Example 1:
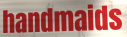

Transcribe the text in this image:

handmaids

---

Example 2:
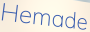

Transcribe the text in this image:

Hemade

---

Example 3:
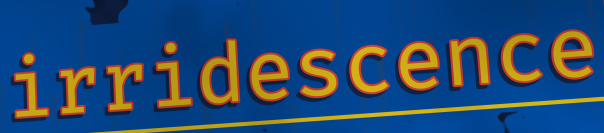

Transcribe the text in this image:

irridescence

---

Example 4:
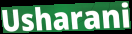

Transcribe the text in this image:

Usharani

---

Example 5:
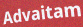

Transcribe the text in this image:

Advaitam